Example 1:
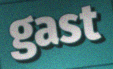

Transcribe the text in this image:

gast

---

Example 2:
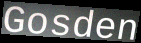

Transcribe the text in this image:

Gosden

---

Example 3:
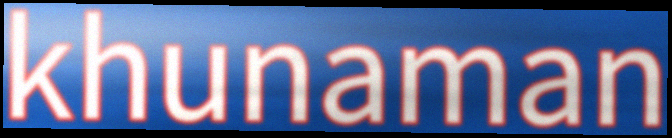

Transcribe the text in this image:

khunaman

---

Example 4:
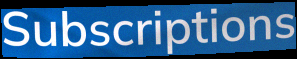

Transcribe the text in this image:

Subscriptions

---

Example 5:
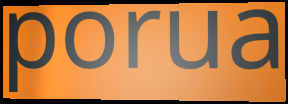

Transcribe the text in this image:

porua